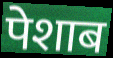
पेशाब